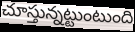
చూస్తున్నట్టుంటుంది